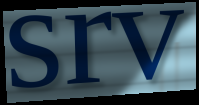
srv